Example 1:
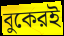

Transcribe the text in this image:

বুকেরই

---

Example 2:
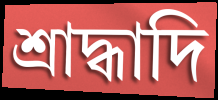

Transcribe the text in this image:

শ্রাদ্ধাদি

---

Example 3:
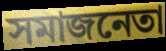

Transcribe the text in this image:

সমাজনেতা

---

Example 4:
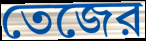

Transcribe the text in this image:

তেজের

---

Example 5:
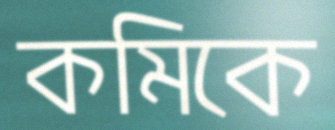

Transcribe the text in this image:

কমিকে